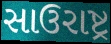
સાઉરાષ્ટ્ર